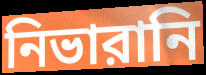
নিভারানি